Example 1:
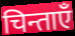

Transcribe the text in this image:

चिन्ताएँ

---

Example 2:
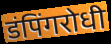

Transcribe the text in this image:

डंपिंगरोधी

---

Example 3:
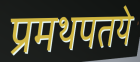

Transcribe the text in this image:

प्रमथपतये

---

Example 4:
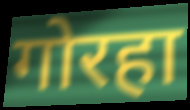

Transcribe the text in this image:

गोरहा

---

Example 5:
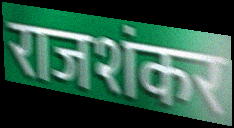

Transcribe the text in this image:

राजशंकर